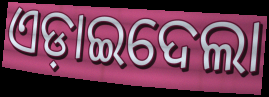
ଏଡ଼ାଇଦେଲା